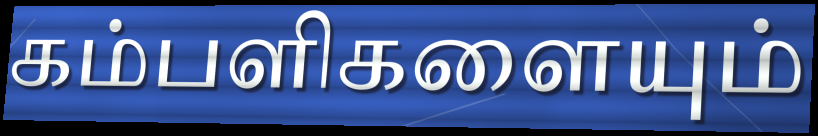
கம்பளிகளையும்